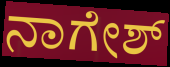
ನಾಗೇಶ್